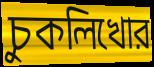
চুকলিখোর